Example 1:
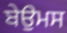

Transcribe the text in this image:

ਬੇਉਮਸ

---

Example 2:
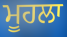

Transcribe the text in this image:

ਮੂਹਲਾ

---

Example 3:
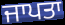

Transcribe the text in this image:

ਜਾਪਤਾ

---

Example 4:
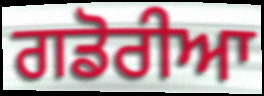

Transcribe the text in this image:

ਗਡੋਰੀਆ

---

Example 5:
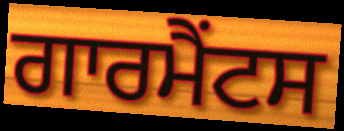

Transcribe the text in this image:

ਗਾਰਮੈਂਟਸ